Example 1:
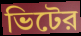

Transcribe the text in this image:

ভিটের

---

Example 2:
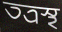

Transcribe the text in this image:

তত্রস্থ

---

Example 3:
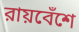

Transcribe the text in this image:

রায়বেঁশে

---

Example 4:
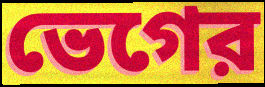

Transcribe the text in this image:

ভেগের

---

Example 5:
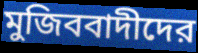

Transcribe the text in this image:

মুজিববাদীদের